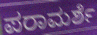
ಪರಾಮರ್ಶೆ